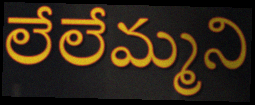
లేలేమ్మని